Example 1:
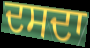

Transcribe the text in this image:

ਦਸਦਾ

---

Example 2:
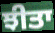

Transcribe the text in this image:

ਝੀਤਾ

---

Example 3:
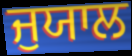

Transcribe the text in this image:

ਜੁਯਾਲ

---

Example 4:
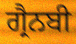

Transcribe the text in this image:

ਗ੍ਰੈਨਬੀ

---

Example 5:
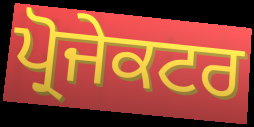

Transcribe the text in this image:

ਪ੍ਰੋਜੇਕਟਰ